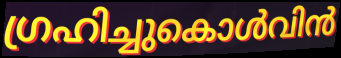
ഗ്രഹിച്ചുകൊൾവിൻ